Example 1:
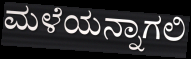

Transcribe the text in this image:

ಮಳೆಯನ್ನಾಗಲಿ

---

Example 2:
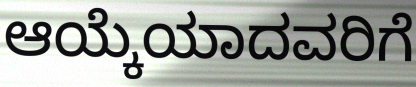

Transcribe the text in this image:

ಆಯ್ಕೆಯಾದವರಿಗೆ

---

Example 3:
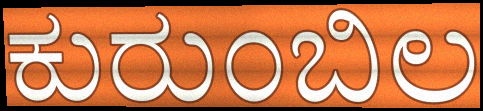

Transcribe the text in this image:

ಕುರುಂಬಿಲ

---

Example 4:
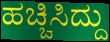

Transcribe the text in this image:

ಹಚ್ಚಿಸಿದ್ದು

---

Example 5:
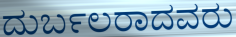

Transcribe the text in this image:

ದುರ್ಬಲರಾದವರು